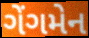
ગેંગમેન